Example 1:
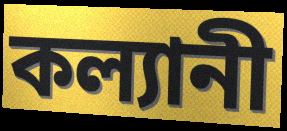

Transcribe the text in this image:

কল্যানী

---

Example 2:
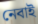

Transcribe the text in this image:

নেবাই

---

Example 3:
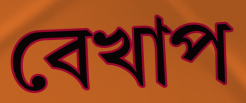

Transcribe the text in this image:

বেখাপ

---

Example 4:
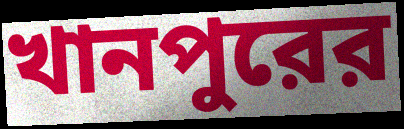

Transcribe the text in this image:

খানপুরের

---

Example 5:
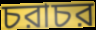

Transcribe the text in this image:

চরাচর